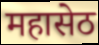
महासेठ